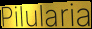
Pilularia